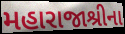
મહારાજાશ્રીના